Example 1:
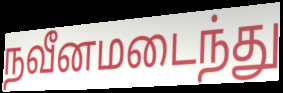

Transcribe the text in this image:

நவீனமடைந்து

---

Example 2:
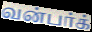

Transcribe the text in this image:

வன்பர்க்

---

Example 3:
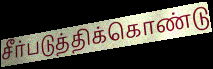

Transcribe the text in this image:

சீர்படுத்திக்கொண்டு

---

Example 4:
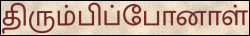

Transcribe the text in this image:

திரும்பிப்போனாள்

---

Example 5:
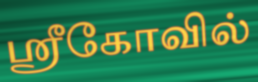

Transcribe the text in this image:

ஸ்ரீகோவில்